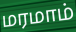
மரமாம்